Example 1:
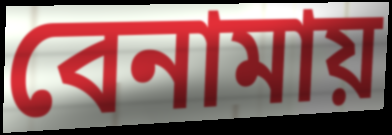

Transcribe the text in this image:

বেনামায়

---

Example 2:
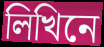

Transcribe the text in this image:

লিখিনে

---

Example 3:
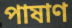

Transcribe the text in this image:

পাষাণ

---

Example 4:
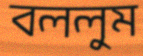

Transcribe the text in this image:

বললুম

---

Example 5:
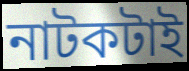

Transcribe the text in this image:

নাটকটাই